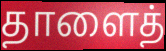
தாளைத்